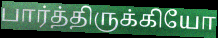
பார்த்திருக்கியோ